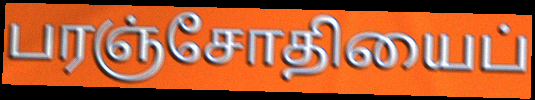
பரஞ்சோதியைப்